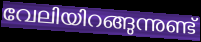
വേലിയിറങ്ങുന്നുണ്ട്